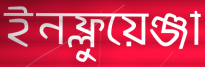
ইনফ্লুয়েঞ্জা